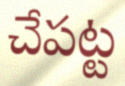
చేపట్ట